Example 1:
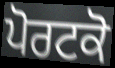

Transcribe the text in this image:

ਪੋਰਟਕੋ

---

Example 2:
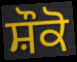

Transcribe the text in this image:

ਸ਼ੌਕੋ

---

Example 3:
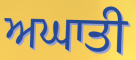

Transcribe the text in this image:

ਅਘਾਤੀ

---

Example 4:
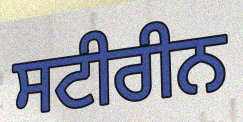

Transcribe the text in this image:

ਸਟੀਰੀਨ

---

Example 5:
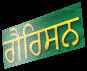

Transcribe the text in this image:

ਗੈਰਿਸਨ